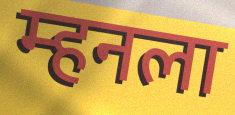
म्हनला